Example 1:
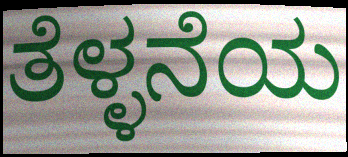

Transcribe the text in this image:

ತೆಳ್ಳನೆಯ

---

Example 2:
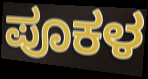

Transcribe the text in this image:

ಪೂಕಳ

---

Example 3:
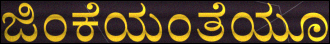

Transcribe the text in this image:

ಜಿಂಕೆಯಂತೆಯೂ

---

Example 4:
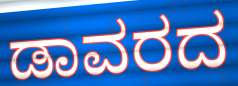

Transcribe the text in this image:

ಡಾವರದ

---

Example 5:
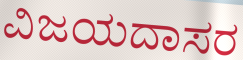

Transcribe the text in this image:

ವಿಜಯದಾಸರ